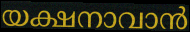
യക്ഷനാവാൻ